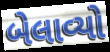
બેલાવ્યો